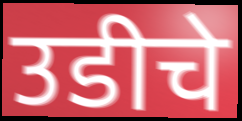
उडीचे